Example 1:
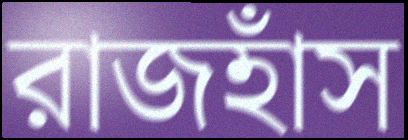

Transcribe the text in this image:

রাজহাঁস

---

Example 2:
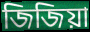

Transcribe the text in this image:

জিজিয়া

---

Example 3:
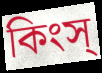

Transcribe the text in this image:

কিংস্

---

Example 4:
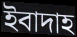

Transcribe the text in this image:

ইবাদাহ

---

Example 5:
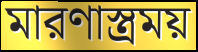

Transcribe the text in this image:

মারণাস্ত্রময়